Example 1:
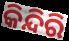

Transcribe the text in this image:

କିନ୍ଦିରି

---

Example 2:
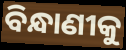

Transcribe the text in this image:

ବିନ୍ଧାଣୀକୁ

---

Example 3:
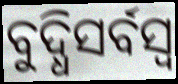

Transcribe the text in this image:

ବୁଦ୍ଧିସର୍ବସ୍ୱ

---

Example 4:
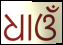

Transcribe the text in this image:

ଧାଓଁ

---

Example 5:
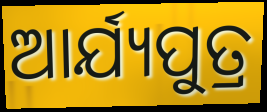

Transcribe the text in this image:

ଆର୍ଯ୍ୟପୁତ୍ର